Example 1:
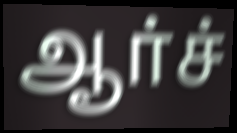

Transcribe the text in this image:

ஆர்ச்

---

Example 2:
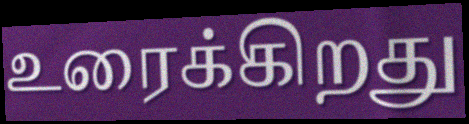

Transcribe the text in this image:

உரைக்கிறது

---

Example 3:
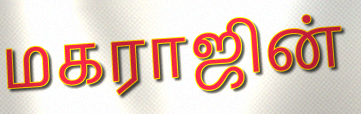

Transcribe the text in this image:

மகராஜின்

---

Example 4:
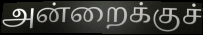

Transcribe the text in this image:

அன்றைக்குச்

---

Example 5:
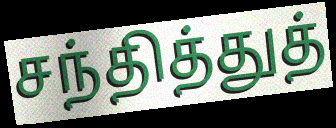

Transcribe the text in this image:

சந்தித்துத்